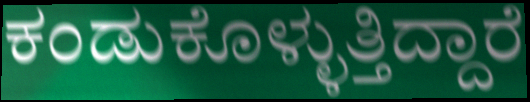
ಕಂಡುಕೊಳ್ಳುತ್ತಿದ್ದಾರೆ